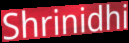
Shrinidhi